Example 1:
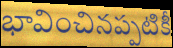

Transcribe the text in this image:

భావించినప్పటికీ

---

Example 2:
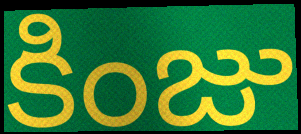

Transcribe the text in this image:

కింజు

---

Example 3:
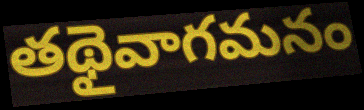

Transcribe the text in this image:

తథైవాగమనం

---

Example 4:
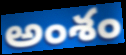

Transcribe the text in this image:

అంశం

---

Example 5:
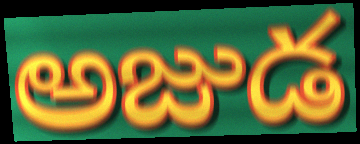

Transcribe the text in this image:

అజుడ